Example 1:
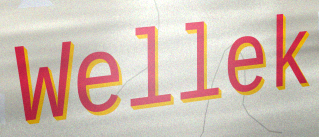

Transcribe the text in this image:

Wellek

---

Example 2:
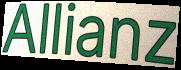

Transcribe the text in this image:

Allianz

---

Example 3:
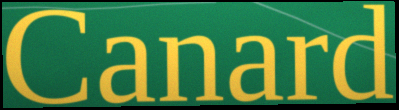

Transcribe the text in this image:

Canard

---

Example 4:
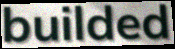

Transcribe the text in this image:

builded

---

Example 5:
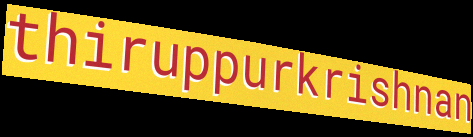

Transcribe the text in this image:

thiruppurkrishnan